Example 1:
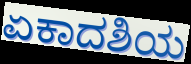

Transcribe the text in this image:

ಏಕಾದಶಿಯ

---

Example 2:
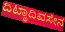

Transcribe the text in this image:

ದಿಟ್ಠಾದಿವಸೇನ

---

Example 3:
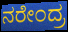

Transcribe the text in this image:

ನರೇಂದ್ರ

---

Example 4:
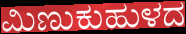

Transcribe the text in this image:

ಮಿಣುಕುಹುಳದ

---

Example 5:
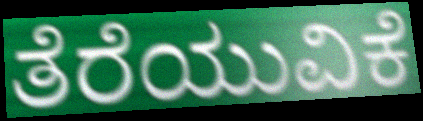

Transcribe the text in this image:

ತೆರೆಯುವಿಕೆ